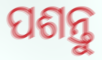
ପଶନ୍ତୁ